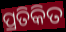
ପ୍ରତିକିତ